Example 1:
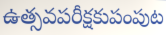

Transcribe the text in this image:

ఉత్సవపరీక్షకుపంపుట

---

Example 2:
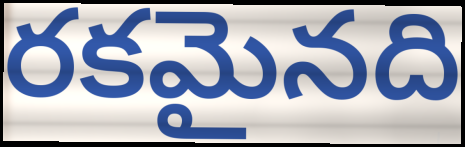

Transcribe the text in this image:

రకమైనది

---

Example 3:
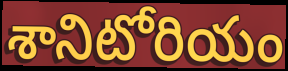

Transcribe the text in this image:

శానిటోరియం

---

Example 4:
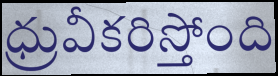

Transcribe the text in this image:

ధ్రువీకరిస్తోంది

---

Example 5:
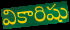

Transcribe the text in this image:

వికారిషు